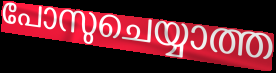
പോസുചെയ്യാത്ത